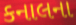
કનાલના